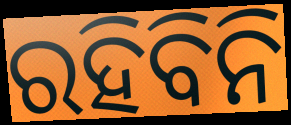
ରହିବିନି